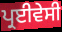
ਪ੍ਰਈਵੇਸੀ